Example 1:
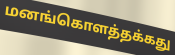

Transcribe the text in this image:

மனங்கொளத்தக்கது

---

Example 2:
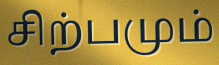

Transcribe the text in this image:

சிற்பமும்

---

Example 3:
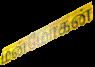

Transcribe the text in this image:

மன்மோகன்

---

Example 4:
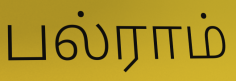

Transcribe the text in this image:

பல்ராம்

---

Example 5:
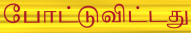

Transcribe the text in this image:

போட்டுவிட்டது